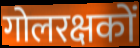
गोलरक्षकों